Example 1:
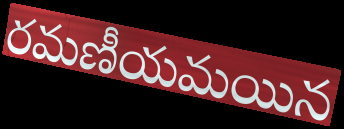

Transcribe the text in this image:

రమణీయమయిన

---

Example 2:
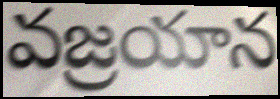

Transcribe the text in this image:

వజ్రయాన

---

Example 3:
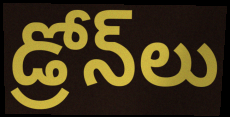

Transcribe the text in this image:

డ్రోన్‌లు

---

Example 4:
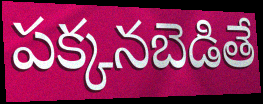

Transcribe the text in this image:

పక్కనబెడితే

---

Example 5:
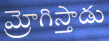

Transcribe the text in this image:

మ్రోగిస్తాడు